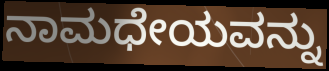
ನಾಮಧೇಯವನ್ನು